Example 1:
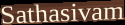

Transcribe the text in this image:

Sathasivam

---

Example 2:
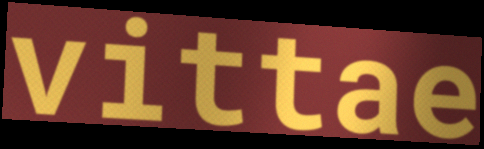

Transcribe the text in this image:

vittae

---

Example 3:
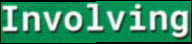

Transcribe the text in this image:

Involving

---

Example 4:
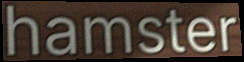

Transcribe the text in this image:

hamster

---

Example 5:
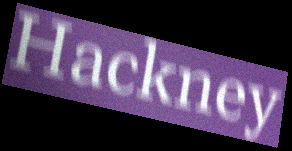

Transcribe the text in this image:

Hackney